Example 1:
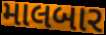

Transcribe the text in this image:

માલબાર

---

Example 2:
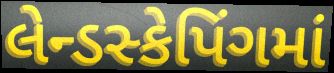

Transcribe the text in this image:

લેન્ડસ્કેપિંગમાં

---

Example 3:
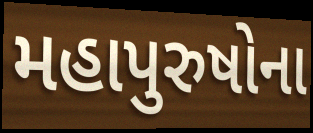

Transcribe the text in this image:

મહાપુરુષોના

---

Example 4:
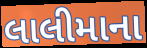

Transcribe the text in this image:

લાલીમાના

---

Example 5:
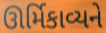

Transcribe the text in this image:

ઊર્મિકાવ્યને